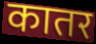
कातर